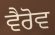
ਵੈਰੋਵ